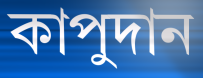
কাপুদান